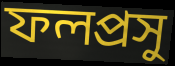
ফলপ্ৰসু